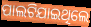
ପାଲଟିଯାଇଥିଲେ